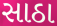
સાઠા